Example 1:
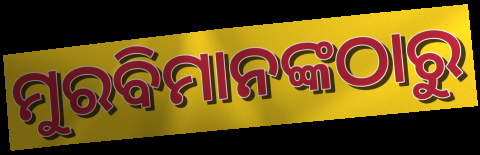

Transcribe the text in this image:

ମୁରବିମାନଙ୍କଠାରୁ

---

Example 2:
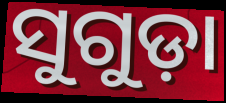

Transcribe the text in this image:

ସୁଗୁଡ଼ା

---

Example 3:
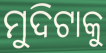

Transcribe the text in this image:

ମୁଦିଟାକୁ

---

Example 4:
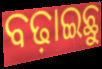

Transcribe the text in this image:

ବଢ଼ାଇଛୁ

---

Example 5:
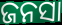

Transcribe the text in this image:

ଜନସା